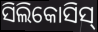
ସିଲିକୋସିସ୍